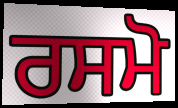
ਰਸਮੋ